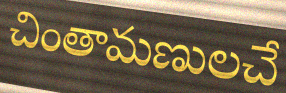
చింతామణులచే